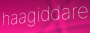
haagiddare